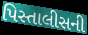
પિસ્તાલીસની